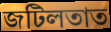
জটিলতাত